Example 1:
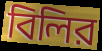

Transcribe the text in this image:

বিলির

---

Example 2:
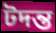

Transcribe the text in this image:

টদন্ত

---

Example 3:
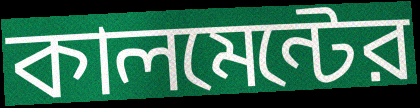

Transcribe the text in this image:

কালমেন্টের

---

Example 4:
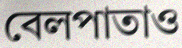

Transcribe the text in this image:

বেলপাতাও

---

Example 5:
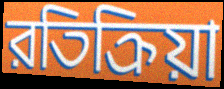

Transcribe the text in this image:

রতিক্রিয়া